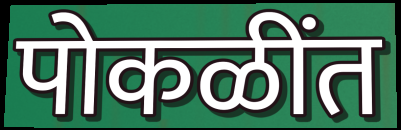
पोकळींत